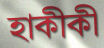
হাকীকী